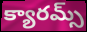
క్యారమ్స్